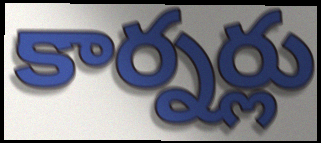
కార్నర్లు